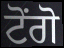
ਟੋਂਗੋ